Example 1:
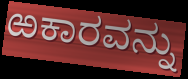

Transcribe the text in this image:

ಱಕಾರವನ್ನು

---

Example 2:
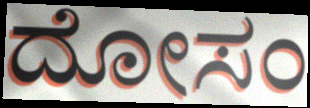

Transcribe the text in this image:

ದೋಸಂ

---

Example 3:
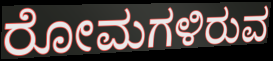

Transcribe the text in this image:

ರೋಮಗಳಿರುವ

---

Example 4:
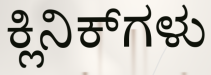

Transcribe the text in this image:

ಕ್ಲಿನಿಕ್‌ಗಳು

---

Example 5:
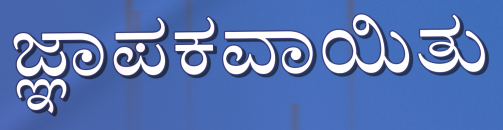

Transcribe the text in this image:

ಜ್ಞಾಪಕವಾಯಿತು